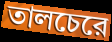
তালচেরে